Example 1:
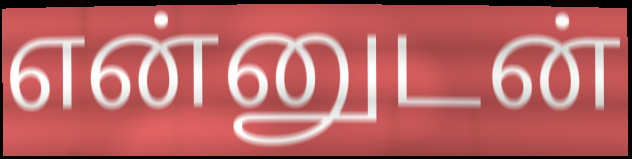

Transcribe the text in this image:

என்னுடன்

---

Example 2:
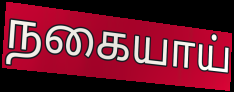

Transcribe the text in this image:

நகையாய்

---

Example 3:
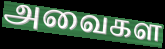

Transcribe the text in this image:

அவைகள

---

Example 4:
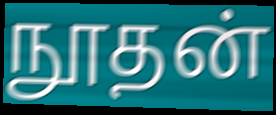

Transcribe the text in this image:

நூதன்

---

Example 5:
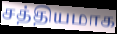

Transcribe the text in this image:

சத்தியமாக